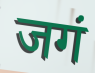
जगं